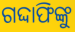
ଗଦ୍ଦାଫିଙ୍କୁ